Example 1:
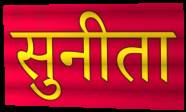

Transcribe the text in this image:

सुनीता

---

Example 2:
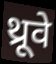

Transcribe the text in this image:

थ्रूवे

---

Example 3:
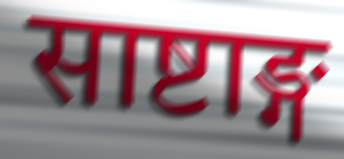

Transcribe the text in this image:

साष्टाङ्ग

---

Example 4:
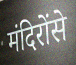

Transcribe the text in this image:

मंदिरोंसे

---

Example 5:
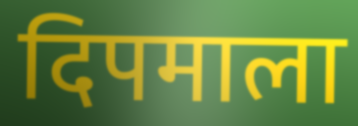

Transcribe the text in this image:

दिपमाला